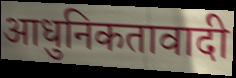
आधुनिकतावादी